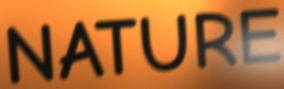
NATURE